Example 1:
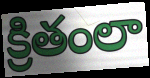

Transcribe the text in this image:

క్రితంలా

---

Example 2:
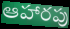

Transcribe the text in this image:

ఆహారపు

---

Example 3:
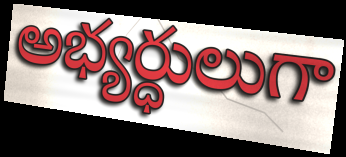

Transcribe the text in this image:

అభ్యర్ధులుగా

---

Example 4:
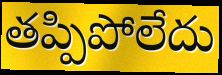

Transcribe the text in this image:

తప్పిపోలేదు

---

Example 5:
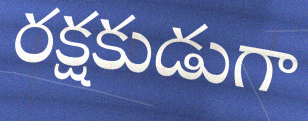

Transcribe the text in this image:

రక్షకుడుగా